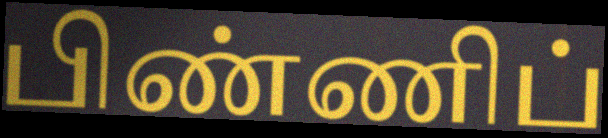
பிண்ணிப்